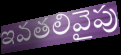
ఇవతలివైపు